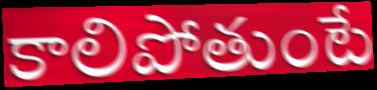
కాలిపోతుంటే